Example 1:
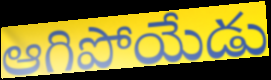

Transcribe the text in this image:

ఆగిపోయేడు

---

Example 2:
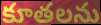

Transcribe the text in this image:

కూతలను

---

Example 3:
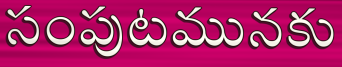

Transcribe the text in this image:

సంపుటమునకు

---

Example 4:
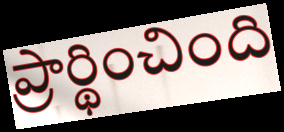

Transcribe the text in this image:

ప్రార్థించింది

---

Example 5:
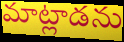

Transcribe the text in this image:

మాట్లాడను